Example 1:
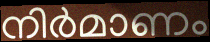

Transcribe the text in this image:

നിർമാണം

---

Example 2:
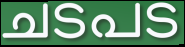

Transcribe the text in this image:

ചടപട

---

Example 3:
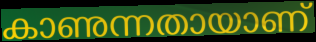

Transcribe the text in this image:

കാണുന്നതായാണ്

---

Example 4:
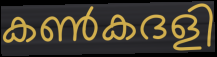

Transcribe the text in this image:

കൺകദളി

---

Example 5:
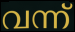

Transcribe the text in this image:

വന്ന്